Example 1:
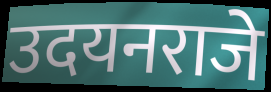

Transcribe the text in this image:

उदयनराजे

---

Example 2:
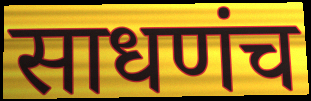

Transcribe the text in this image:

साधणंच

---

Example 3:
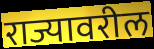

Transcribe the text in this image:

राज्यावरील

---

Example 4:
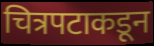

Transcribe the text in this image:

चित्रपटाकडून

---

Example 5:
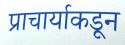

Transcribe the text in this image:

प्राचार्याकडून